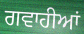
ਗਵਾਹੀਆਂ